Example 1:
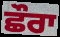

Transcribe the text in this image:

ਛੌਰਾ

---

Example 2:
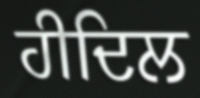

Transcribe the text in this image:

ਹੀਦਿਲ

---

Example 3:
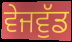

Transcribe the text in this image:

ਵੇਜਵੁੱਡ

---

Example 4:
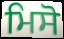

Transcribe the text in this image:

ਮਿਸੋ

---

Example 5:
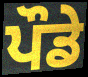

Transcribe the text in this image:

ਪੌਡੇ